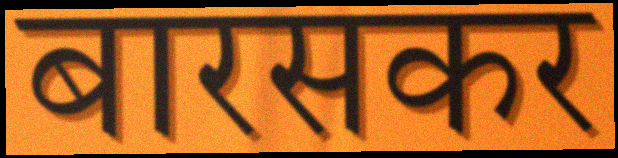
बारसकर